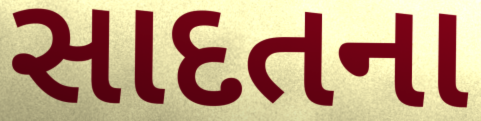
સાદતના